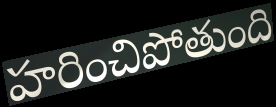
హరించిపోతుంది